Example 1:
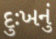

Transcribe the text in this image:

દુઃખનું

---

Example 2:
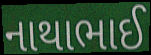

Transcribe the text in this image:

નાથાભાઈ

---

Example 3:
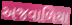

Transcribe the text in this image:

અજવાળિયા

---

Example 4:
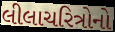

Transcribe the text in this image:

લીલાચરિત્રોનો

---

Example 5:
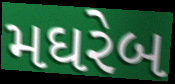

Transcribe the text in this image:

મઘરેબ